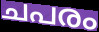
ചപരം